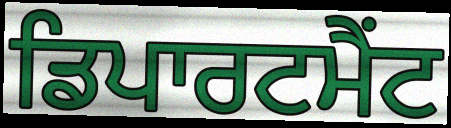
ਡਿਪਾਰਟਮੈਂਟ